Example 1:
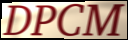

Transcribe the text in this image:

DPCM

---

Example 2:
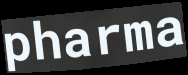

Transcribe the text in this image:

pharma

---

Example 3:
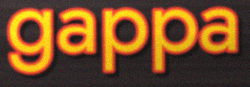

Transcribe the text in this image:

gappa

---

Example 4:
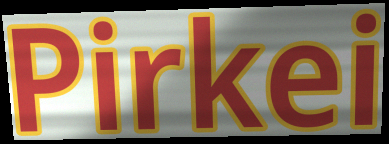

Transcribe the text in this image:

Pirkei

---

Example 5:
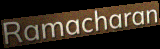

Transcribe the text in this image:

Ramacharan